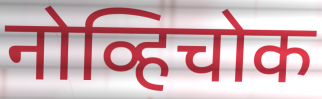
नोव्हिचोक